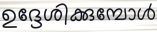
ഉദ്ദേശിക്കുമ്പോൾ